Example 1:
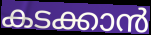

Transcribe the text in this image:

കടക്കാൻ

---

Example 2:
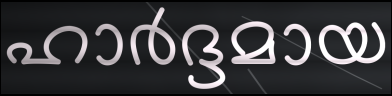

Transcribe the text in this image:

ഹാർദ്ദമായ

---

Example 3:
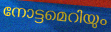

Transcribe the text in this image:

നോട്ടമെറിയും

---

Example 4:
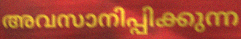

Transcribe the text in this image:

അവസാനിപ്പിക്കുന്ന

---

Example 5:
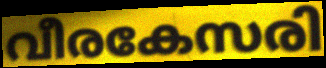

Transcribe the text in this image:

വീരകേസരി